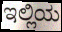
ಇಲ್ಲಿಯ